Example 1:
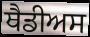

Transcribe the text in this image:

ਥੈਡੀਅਸ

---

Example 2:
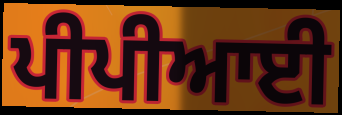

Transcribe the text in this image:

ਪੀਪੀਆਈ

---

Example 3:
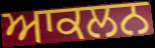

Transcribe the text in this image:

ਆਕਲਨ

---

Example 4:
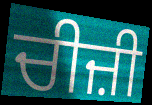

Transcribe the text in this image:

ਚੀਜ਼ੀ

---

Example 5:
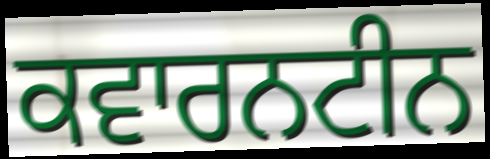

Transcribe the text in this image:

ਕਵਾਰਨਟੀਨ